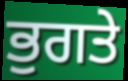
ਭੁਗਤੇ